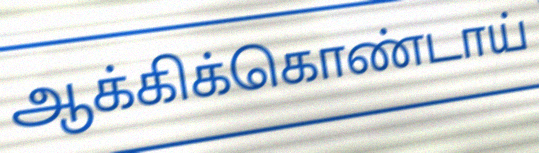
ஆக்கிக்கொண்டாய்